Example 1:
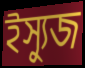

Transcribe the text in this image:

ইস্যুজ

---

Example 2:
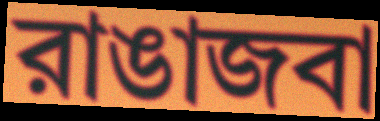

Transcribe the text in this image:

রাঙাজবা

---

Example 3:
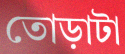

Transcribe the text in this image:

তোড়াটা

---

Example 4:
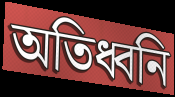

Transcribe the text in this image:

অতিধ্বনি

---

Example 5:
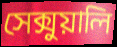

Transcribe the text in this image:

সেক্সুয়ালি